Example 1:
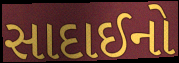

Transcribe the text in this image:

સાદાઈનો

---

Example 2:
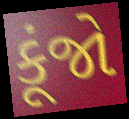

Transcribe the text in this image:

કૂંજો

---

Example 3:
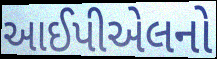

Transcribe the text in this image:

આઈપીએલનો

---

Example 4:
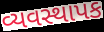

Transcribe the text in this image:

વ્યવસ્થાપક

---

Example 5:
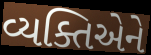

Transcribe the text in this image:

વ્યક્તિએને